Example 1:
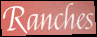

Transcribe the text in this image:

Ranches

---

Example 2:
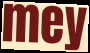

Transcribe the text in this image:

mey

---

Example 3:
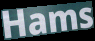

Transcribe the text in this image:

Hams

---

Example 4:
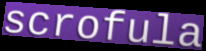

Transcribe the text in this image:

scrofula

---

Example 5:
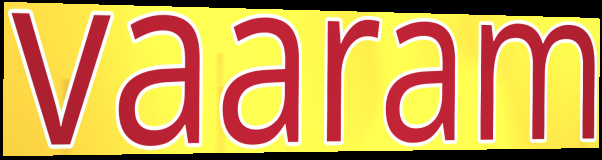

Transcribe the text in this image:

vaaram